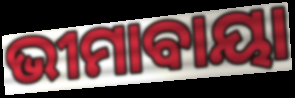
ଭୀମାବାୟା